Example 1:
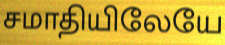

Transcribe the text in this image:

சமாதியிலேயே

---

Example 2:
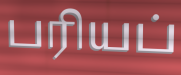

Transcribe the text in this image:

பரியப்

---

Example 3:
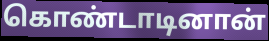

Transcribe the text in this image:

கொண்டாடினான்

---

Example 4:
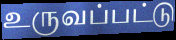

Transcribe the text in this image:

உருவப்பட்டு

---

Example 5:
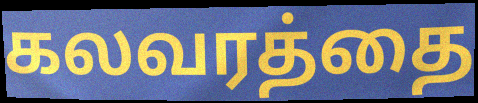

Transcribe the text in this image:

கலவரத்தை